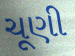
ચૂણી